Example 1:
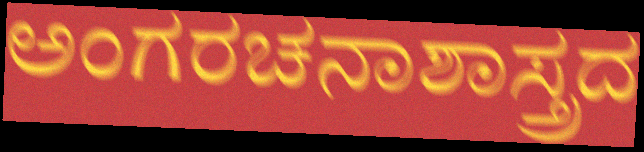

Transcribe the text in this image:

ಅಂಗರಚನಾಶಾಸ್ತ್ರದ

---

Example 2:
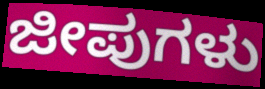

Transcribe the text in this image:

ಜೀಪುಗಳು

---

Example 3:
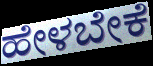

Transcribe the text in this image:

ಹೇಳಬೇಕೆ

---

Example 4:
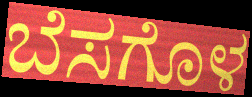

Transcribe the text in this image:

ಬೆಸಗೊಳ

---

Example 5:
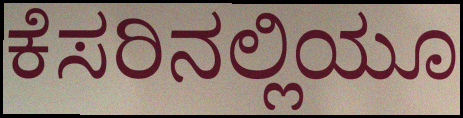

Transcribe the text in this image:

ಕೆಸರಿನಲ್ಲಿಯೂ